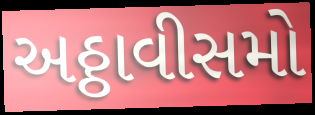
અઠ્ઠાવીસમો